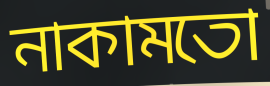
নাকামতো